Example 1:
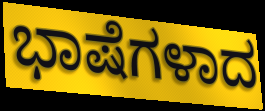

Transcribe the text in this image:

ಭಾಷೆಗಳಾದ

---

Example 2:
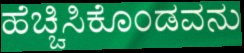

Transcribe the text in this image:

ಹೆಚ್ಚಿಸಿಕೊಂಡವನು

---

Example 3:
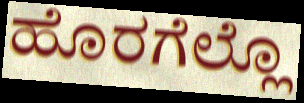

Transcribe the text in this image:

ಹೊರಗೆಲ್ಲೊ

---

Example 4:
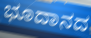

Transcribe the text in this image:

ಭೂದಾನದ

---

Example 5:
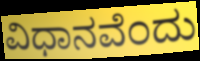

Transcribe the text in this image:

ವಿಧಾನವೆಂದು